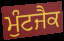
ਮੁੰਟਜੈਕ